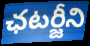
ఛటర్జీని